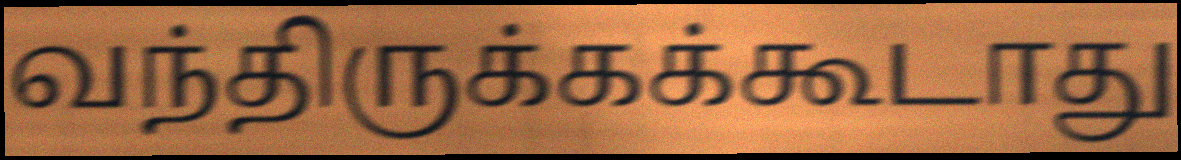
வந்திருக்கக்கூடாது